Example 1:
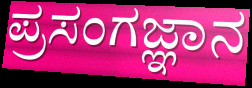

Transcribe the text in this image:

ಪ್ರಸಂಗಜ್ಞಾನ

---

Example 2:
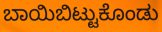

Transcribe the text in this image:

ಬಾಯಿಬಿಟ್ಟುಕೊಂಡು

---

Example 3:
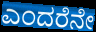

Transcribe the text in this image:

ಎಂದರೆನೇ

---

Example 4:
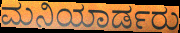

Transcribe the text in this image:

ಮನಿಯಾರ್ಡರು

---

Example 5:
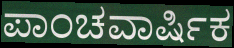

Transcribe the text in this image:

ಪಾಂಚವಾರ್ಷಿಕ